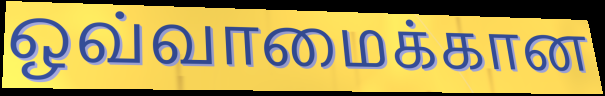
ஒவ்வாமைக்கான